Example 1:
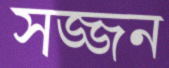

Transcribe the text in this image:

সজ্জন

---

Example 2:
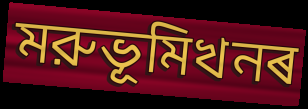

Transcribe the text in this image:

মৰুভূমিখনৰ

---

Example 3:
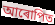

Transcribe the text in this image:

আৰোপিত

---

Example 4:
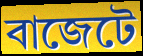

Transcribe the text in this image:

বাজেটে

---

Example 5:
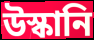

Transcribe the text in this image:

উস্কানি